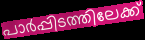
പാർപ്പിടത്തിലേക്ക്